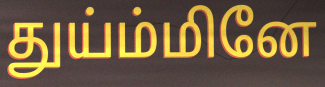
துய்ம்மினே